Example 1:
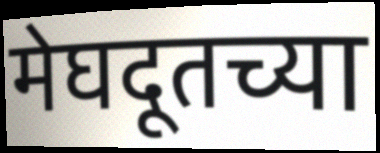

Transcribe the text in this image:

मेघदूतच्या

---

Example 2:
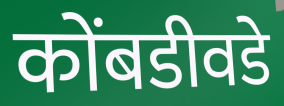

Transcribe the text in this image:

कोंबडीवडे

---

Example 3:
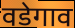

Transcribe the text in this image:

वडेगाव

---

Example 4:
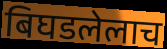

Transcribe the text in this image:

बिघडलेलाच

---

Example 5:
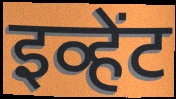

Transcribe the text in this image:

इव्हेंट